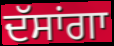
ਦੱਸਾਂਗਾ